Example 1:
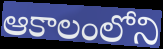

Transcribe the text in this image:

ఆకాలంలోని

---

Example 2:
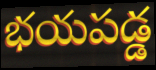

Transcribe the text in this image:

భయపడ్డ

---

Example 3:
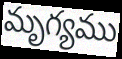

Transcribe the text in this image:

మృగ్యము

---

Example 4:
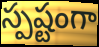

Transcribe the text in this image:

స్పష్టంగా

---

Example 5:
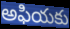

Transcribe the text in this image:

అఫియకు